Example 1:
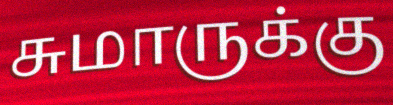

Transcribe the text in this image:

சுமாருக்கு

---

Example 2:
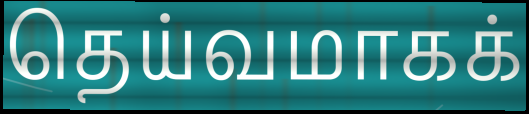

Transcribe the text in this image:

தெய்வமாகக்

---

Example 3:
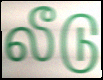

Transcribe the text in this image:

லீடு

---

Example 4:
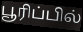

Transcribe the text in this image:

பூரிப்பில்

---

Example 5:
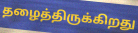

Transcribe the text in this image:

தழைத்திருக்கிறது